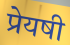
प्रेयषी